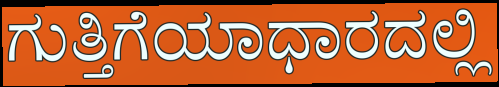
ಗುತ್ತಿಗೆಯಾಧಾರದಲ್ಲಿ